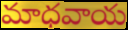
మాధవాయ